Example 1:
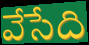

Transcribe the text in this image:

వేసేది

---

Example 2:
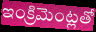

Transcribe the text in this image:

ఇంక్రిమెంట్లతో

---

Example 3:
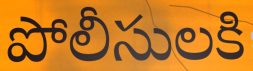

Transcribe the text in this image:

పోలీసులకి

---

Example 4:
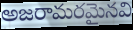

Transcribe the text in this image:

అజరామరమైనవి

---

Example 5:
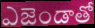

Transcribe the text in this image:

ఎజెండాతో